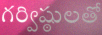
గర్విష్ఠులతో